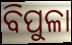
ବିପୁଳା